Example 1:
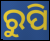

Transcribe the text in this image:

ରୁପି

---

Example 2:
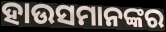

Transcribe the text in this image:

ହାଉସମାନଙ୍କର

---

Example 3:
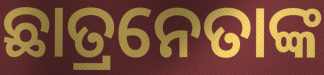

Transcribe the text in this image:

ଛାତ୍ରନେତାଙ୍କ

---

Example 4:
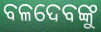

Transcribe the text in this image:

ବଳଦେବଙ୍କୁ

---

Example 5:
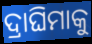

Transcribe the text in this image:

ଦ୍ରାଘିମାକୁ